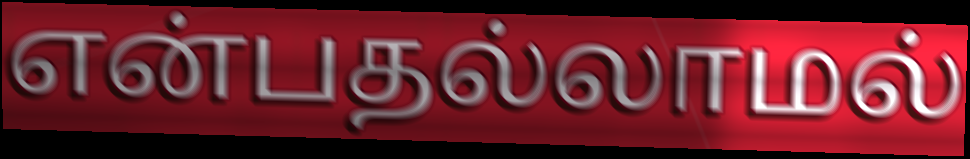
என்பதல்லாமல்